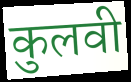
कुलवी